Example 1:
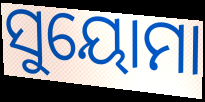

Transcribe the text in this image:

ସୁୟୋମା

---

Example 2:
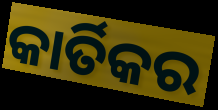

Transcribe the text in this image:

କାର୍ତିକର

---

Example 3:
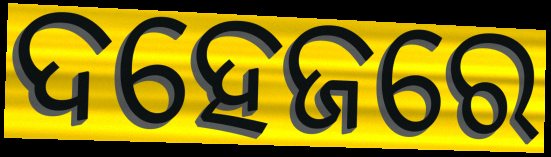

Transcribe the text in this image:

ଦହେଜରେ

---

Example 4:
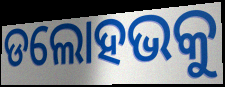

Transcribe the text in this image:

ଡଲୋହଭକୁ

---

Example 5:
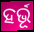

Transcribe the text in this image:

ହର୍ଭୂ